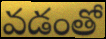
వడంతో